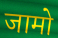
जामो